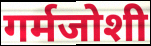
गर्मजोशी